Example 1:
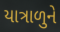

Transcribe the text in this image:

યાત્રાળુને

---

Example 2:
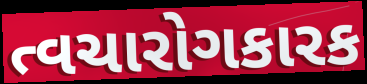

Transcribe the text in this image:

ત્વચારોગકારક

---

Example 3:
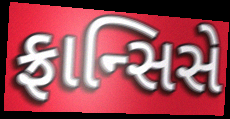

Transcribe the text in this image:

ફ્રાન્સિસે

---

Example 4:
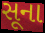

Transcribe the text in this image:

સૂના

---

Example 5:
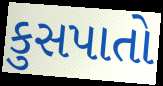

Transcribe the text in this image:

કુસપાતો